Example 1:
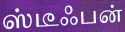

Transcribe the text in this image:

ஸ்டீஃபன்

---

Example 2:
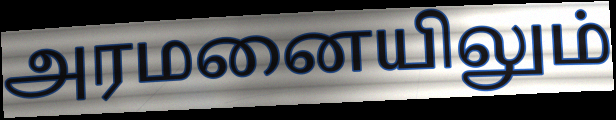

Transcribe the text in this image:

அரமனையிலும்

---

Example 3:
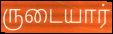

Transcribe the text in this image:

ருடையார்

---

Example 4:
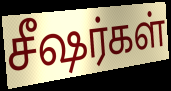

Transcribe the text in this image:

சீஷர்கள்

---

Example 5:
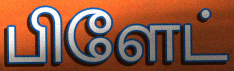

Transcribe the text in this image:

பிளேட்